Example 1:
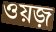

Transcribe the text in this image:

ওয়জ়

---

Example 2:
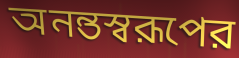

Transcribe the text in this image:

অনন্তস্বরূপের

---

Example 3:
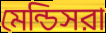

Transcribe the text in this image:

মেন্ডিসরা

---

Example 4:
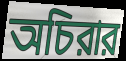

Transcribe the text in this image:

অচিরার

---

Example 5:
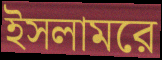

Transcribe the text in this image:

ইসলামরে